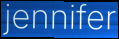
jennifer